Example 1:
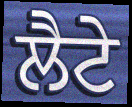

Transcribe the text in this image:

ਲੈਟੇ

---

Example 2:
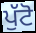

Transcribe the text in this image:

ਪੁੱਟੋ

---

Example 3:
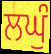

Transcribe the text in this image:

ਲਘੁੰ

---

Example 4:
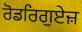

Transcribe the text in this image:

ਰੋਡਰਿਗੁਏਜ਼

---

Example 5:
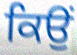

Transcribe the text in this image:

ਕਿਉੰ